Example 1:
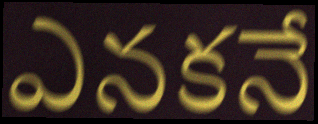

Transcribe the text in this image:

ఎనకనే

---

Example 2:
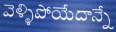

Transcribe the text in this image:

వెళ్ళిపోయేదాన్నే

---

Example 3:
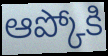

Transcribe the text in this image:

ఆప్కోకి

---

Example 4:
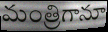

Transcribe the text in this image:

మంత్రిగానూ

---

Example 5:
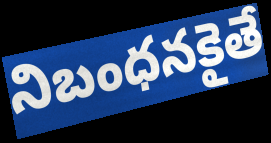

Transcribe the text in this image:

నిబంధనకైతే